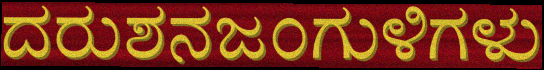
ದರುಶನಜಂಗುಳಿಗಳು